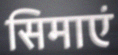
सिमाएं